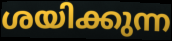
ശയിക്കുന്ന